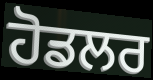
ਹੋਡਲਰ